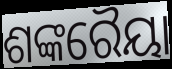
ଶଙ୍କରୈୟା